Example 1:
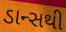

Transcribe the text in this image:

ડાન્સથી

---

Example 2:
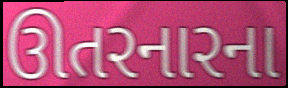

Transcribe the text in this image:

ઊતરનારના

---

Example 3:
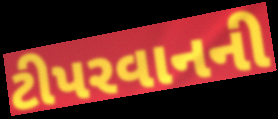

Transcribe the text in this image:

ટીપરવાનની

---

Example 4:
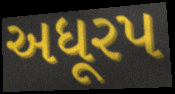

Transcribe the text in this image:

અધૂરપ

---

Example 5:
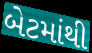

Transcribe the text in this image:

બેટમાંથી